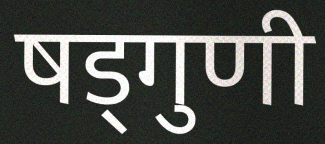
षड्गुणी